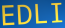
EDLI